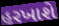
હરખાશે